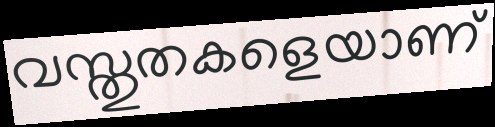
വസ്തുതകളെയാണ്